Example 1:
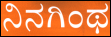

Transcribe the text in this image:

ನಿನಗಿಂಥ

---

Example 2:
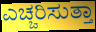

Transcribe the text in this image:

ಎಚ್ಚರಿಸುತ್ತಾ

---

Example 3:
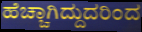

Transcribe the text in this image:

ಹೆಚ್ಚಾಗಿದ್ದುದರಿಂದ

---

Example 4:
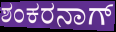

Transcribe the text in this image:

ಶಂಕರನಾಗ್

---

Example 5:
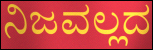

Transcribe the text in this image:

ನಿಜವಲ್ಲದ